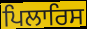
ਪਿਲਾਰਿਸ